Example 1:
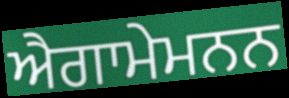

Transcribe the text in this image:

ਐਗਾਮੇਮਨਨ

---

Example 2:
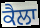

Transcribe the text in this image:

ਕੈਲਾ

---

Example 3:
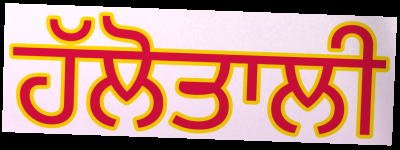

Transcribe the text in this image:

ਹੱਲੋਤਾਲੀ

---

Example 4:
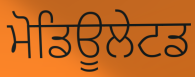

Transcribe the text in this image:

ਮੋਡਿਊਲੇਟਡ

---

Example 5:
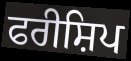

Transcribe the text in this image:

ਫਰੀਸ਼ਿਪ